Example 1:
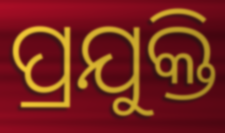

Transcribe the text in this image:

ପ୍ରଯୁକ୍ତି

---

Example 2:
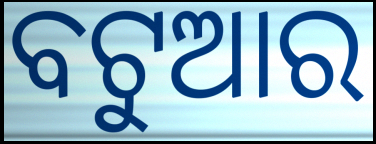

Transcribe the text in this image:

ବଟୁଆର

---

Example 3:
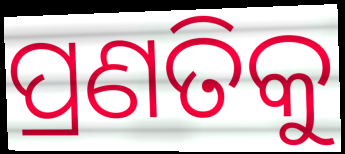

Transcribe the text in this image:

ପ୍ରଣତିକୁ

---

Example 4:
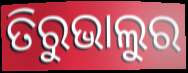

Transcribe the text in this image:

ତିରୁଭାଲୁର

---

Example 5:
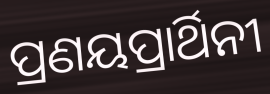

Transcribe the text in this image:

ପ୍ରଣୟପ୍ରାର୍ଥିନୀ